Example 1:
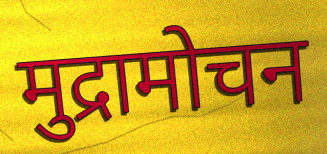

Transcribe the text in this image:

मुद्रामोचन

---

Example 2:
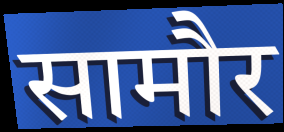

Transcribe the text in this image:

सामौर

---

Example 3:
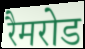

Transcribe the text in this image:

रैमरोड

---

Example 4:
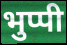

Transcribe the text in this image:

भुप्पी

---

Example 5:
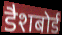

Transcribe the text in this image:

डैशबोर्ड